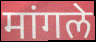
मांगले